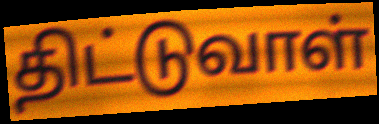
திட்டுவாள்